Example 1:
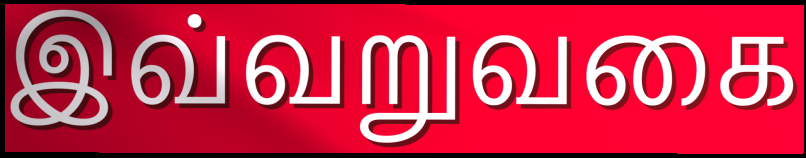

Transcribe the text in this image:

இவ்வறுவகை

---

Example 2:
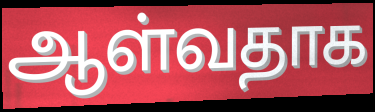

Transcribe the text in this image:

ஆள்வதாக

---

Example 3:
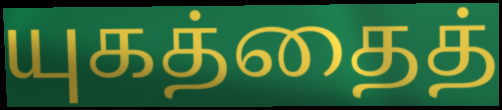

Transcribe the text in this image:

யுகத்தைத்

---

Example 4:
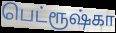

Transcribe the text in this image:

பெட்ரூஷ்கா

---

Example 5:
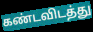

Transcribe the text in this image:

கண்டவிடத்து